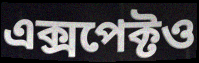
এক্সপেক্টও